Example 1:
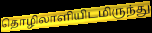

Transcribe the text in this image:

தொழிலாளியிடமிருந்து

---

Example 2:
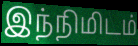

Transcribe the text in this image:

இந்நிமிடம்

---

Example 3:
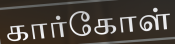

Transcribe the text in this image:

கார்கோள்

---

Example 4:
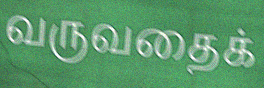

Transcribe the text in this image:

வருவதைக்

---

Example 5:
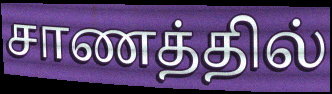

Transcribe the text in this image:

சாணத்தில்